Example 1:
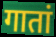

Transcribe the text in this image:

गातां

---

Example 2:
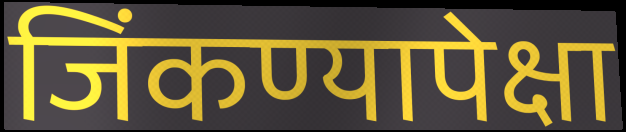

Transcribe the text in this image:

जिंकण्यापेक्षा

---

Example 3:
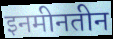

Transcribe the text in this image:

इनमीनतीन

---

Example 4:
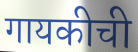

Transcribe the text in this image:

गायकीची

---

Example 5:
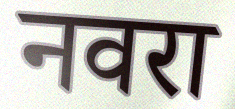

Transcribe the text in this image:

नवरा